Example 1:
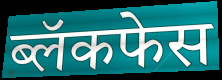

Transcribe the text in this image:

ब्लॅकफेस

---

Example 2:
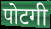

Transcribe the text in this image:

पोटगी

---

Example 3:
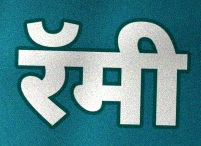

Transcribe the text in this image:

रॅमी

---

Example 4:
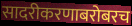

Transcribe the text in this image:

सादरीकरणाबरोबरच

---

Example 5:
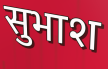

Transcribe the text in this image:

सुभाश